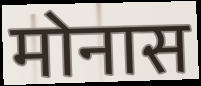
मोनास